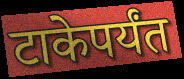
टाकेपर्यंत